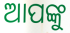
ଆପଙ୍କୁ